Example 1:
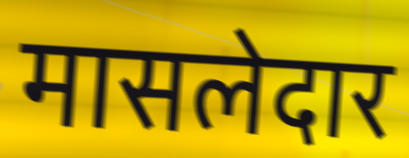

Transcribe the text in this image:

मासलेदार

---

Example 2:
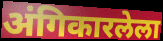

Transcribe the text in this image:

अंगिकारलेला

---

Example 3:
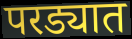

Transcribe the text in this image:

परड्यात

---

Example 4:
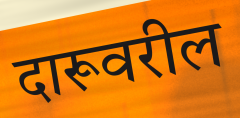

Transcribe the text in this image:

दारूवरील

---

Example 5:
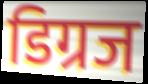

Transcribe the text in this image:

डिग्रज